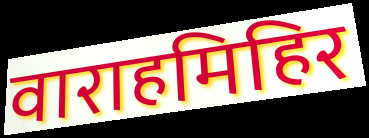
वाराहमिहिर